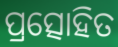
ପ୍ରତ୍ସୋହିତ